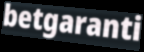
betgaranti